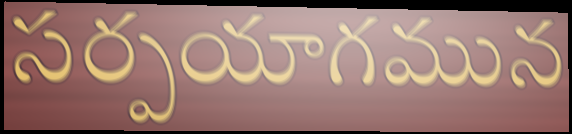
సర్పయాగమున